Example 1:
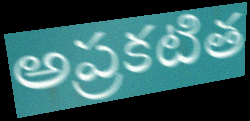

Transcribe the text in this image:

అప్రకటిత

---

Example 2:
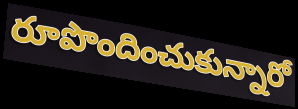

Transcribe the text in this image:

రూపొందించుకున్నారో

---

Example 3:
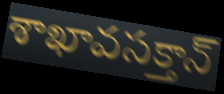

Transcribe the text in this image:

శాఖావసక్తాన్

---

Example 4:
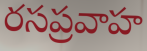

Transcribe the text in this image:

రసప్రవాహ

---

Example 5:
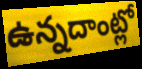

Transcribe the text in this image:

ఉన్నదాంట్లో